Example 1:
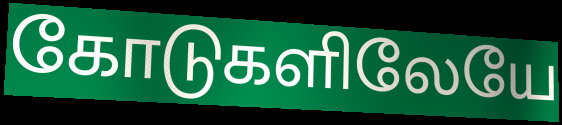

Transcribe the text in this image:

கோடுகளிலேயே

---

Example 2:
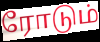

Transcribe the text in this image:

ரோடும்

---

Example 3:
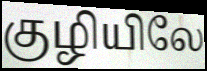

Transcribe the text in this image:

குழியிலே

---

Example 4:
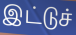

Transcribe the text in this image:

இட்டுச்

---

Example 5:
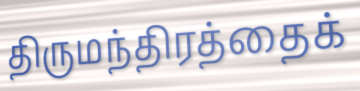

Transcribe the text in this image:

திருமந்திரத்தைக்